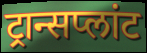
ट्रान्सप्लांट